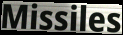
Missiles